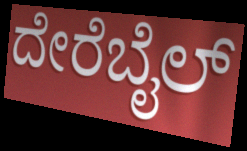
ದೇರೆಬೈಲ್